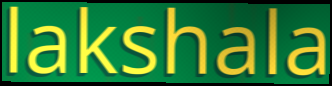
lakshala